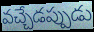
వచ్చేడప్పుడు